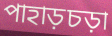
পাহাড়চড়া